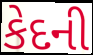
કેદની